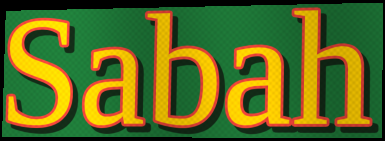
Sabah